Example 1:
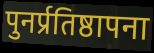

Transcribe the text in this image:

पुनर्प्रतिष्ठापना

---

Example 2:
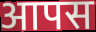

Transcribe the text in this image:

आपस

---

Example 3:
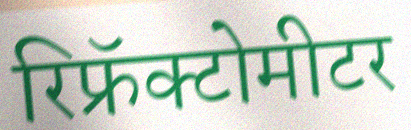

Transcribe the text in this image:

रिफ्रॅक्टोमीटर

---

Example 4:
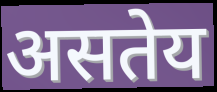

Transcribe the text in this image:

असतेय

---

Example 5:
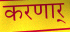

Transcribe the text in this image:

करणार्